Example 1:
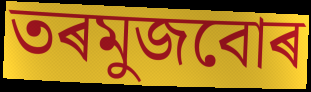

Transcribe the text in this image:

তৰমুজবোৰ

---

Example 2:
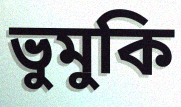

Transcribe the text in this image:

ভুমুকি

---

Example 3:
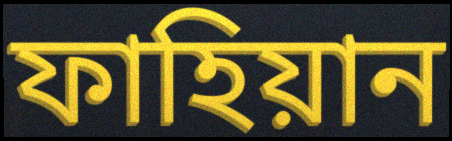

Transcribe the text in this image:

ফাহিয়ান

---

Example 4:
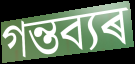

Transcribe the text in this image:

গন্তব্যৰ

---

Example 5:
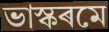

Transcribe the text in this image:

ভাস্কৰমে